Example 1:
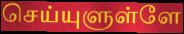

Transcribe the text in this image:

செய்யுளுள்ளே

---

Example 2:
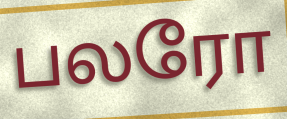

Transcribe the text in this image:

பலரோ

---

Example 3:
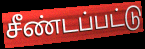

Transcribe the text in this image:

சீண்டப்பட்டு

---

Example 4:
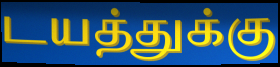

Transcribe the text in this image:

டயத்துக்கு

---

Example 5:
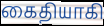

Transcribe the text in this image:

கைதியாகி